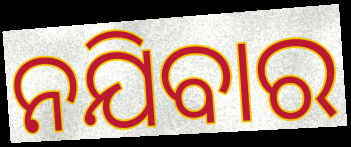
ନଯିବାର